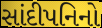
સાંદીપનિનો